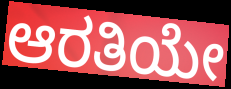
ಆರತಿಯೇ